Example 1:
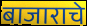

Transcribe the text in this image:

बाजाराचे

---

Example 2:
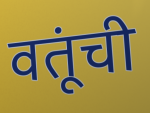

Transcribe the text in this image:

वतूंची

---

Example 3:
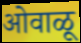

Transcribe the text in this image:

ओवाळू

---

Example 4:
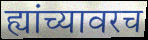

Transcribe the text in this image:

ह्यांच्यावरच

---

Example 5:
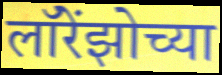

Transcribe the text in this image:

लॉरेंझोच्या